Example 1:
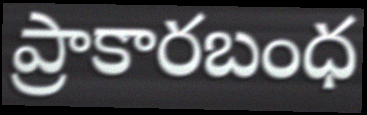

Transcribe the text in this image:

ప్రాకారబంధ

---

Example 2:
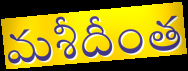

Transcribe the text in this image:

మశీదీంత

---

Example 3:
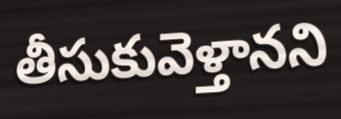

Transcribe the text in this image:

తీసుకువెళ్తానని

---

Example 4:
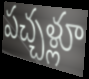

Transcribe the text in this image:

పచ్చళ్లూ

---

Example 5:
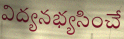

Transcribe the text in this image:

విద్యనభ్యసించే